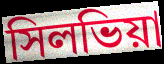
সিলভিয়া